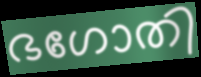
ഭഗോതി